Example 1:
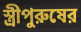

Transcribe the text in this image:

স্ত্রীপুরুষের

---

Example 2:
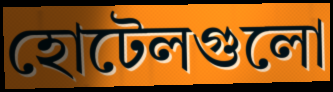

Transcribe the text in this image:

হোটেলগুলো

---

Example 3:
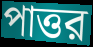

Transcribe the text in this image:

পাত্তর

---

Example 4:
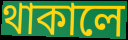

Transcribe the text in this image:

থাকালে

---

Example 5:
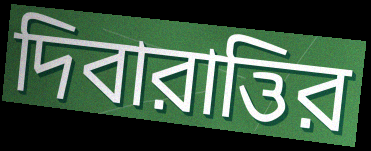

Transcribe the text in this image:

দিবারাত্তির